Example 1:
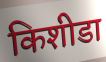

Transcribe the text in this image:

किशीडा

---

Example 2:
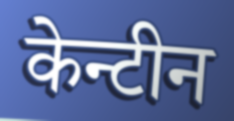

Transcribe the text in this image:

केन्टीन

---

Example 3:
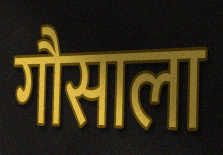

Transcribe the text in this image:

गौसाला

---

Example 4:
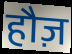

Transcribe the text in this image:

हौज़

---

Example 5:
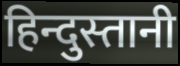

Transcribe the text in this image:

हिन्‍दुस्‍तानी